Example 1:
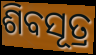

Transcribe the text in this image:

ଶିବସୂତ୍ର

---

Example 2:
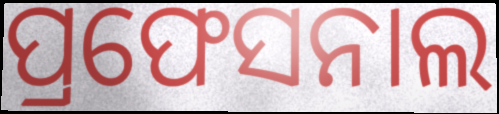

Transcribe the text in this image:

ପ୍ରଫେସନାଲ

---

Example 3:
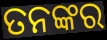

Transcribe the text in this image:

ତନଙ୍କର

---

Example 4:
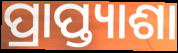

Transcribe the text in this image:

ପ୍ରାପ୍ତ୍ୟାଶା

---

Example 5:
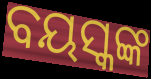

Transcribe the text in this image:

ବୟସ୍କଙ୍କ